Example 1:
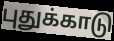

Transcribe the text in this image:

புதுக்காடு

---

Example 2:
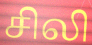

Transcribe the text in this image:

சிலி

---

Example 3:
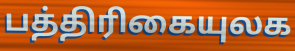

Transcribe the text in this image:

பத்திரிகையுலக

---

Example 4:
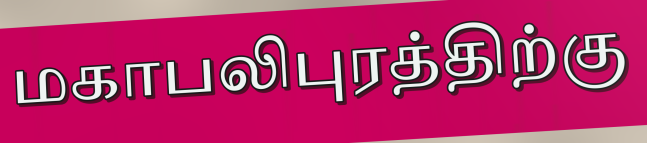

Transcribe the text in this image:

மகாபலிபுரத்திற்கு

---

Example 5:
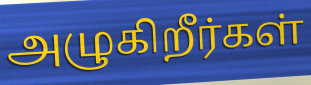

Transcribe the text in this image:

அழுகிறீர்கள்